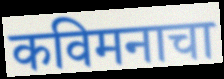
कविमनाचा